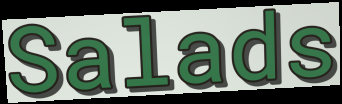
Salads